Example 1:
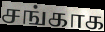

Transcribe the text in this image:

சங்காக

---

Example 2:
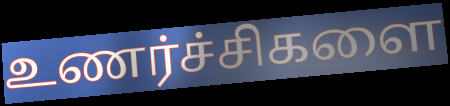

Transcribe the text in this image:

உணர்ச்சிகளை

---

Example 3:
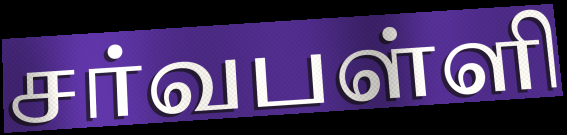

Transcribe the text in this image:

சர்வபள்ளி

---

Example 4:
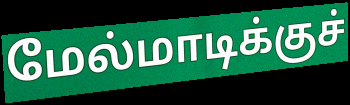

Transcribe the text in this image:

மேல்மாடிக்குச்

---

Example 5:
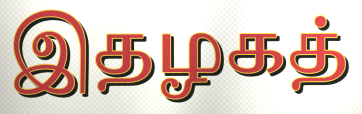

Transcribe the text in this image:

இதழகத்